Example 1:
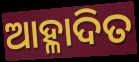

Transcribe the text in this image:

ଆହ୍ଳାଦିତ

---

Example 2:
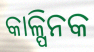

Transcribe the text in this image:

କାଳ୍ପିନକ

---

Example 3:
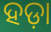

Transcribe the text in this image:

ହଡ଼ା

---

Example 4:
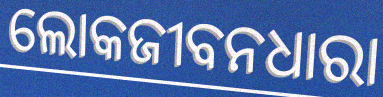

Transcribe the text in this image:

ଲୋକଜୀବନଧାରା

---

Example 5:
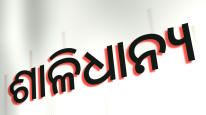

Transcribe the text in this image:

ଶାଳିଧାନ୍ୟ